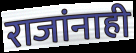
राजांनाही